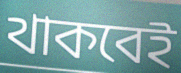
থাকবেই